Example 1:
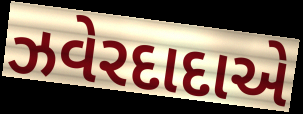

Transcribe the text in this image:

ઝવેરદાદાએ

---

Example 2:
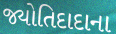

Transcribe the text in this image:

જ્યોતિદાદાના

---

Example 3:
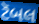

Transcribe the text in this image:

ટૅબલ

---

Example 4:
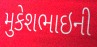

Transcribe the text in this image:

મુકેશભાઇની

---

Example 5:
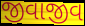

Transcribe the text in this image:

જીવાજીવ